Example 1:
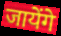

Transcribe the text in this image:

जायेंगे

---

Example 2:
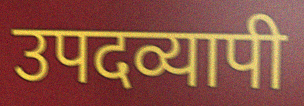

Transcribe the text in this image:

उपदव्यापी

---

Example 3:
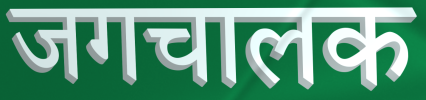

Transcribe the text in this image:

जगचालक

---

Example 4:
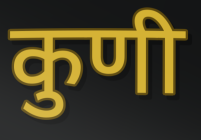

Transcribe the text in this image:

कुणी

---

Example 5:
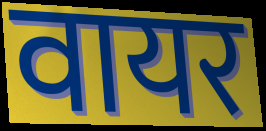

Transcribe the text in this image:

वायर